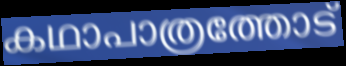
കഥാപാത്രത്തോട്